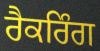
ਰੈਕਰਿੰਗ